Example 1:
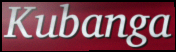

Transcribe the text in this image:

Kubanga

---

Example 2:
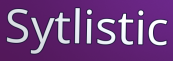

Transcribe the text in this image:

Sytlistic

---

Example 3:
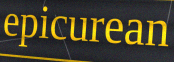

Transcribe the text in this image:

epicurean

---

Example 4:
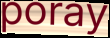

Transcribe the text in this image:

poray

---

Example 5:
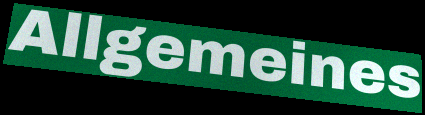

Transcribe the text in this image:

Allgemeines